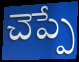
చెప్పే